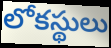
లోకస్థులు